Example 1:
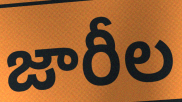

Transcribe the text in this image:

జారీల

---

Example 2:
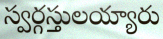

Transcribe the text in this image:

స్వర్గస్తులయ్యారు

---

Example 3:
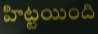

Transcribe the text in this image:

హిట్టయింది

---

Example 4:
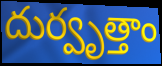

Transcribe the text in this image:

దుర్వృత్తాం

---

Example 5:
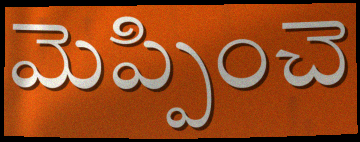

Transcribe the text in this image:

మెప్పించె